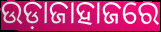
ଉଡ଼ାଜାହାଜରେ